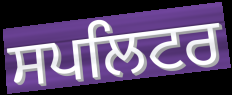
ਸਪਲਿਟਰ